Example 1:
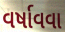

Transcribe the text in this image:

વર્ષાવવા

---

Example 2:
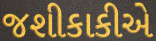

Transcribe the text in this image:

જશીકાકીએ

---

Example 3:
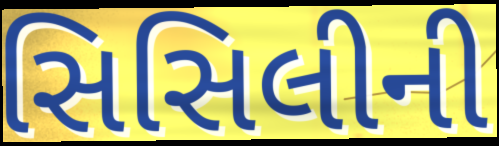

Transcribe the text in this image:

સિસિલીની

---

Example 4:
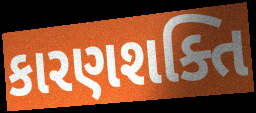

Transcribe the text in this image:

કારણશક્તિ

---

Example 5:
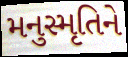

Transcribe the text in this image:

મનુસ્મૃતિને